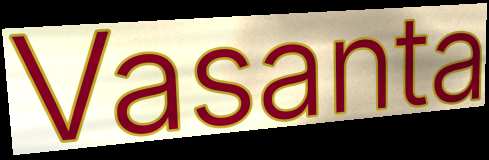
Vasanta